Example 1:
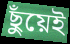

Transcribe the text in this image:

ছুঁয়েই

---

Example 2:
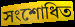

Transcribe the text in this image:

সংশোধিত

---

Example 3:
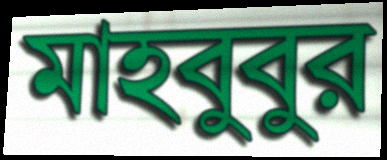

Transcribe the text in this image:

মাহবুবুর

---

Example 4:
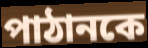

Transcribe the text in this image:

পাঠানকে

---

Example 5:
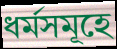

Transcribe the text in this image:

ধর্মসমূহে